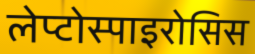
लेप्टोस्पाइरोसिस